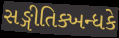
સઙ્ગીતિક્ખન્ધકે